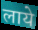
लाये